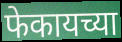
फेकायच्या